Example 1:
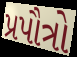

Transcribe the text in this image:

પ્રપૌત્રો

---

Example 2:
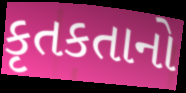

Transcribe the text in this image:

કૃતકતાનો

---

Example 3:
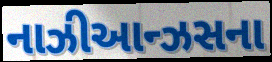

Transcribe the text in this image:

નાઝીઆન્ઝસના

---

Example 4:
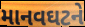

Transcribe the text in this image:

માનવઘટને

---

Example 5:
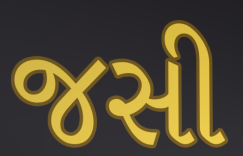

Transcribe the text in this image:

જસી